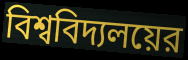
বিশ্ববিদ্যলয়ের